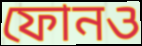
ফোনও